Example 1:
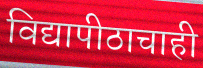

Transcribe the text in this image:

विद्यापीठाचाही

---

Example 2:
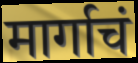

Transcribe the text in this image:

मार्गाचं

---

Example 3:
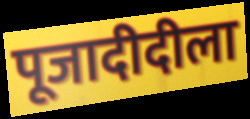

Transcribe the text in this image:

पूजादीदीला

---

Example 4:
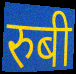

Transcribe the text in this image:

रुबी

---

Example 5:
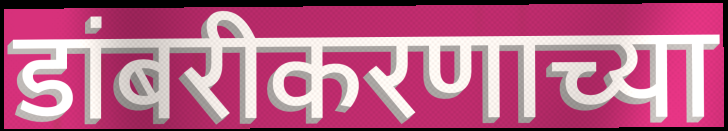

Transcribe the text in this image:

डांबरीकरणाच्या